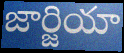
జార్జియా